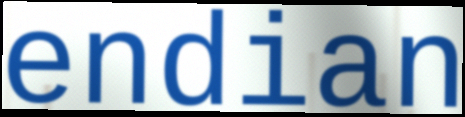
endian